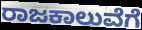
ರಾಜಕಾಲುವೆಗೆ